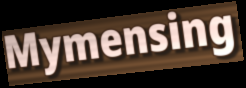
Mymensing